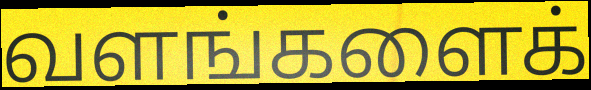
வளங்களைக்